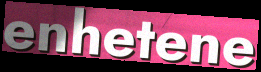
enhetene